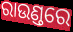
ରାଉଣ୍ଡରେ